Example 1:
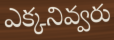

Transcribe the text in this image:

ఎక్కనివ్వరు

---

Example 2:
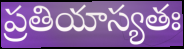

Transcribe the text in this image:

ప్రతియాస్యతః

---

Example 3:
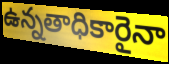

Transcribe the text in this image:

ఉన్నతాధికారైనా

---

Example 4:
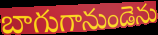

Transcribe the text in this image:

బాగుగానుండెను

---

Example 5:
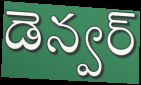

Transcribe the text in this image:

డెన్వర్